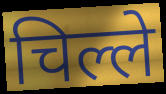
चिल्ले